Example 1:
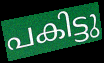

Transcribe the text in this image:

പകിട്ടു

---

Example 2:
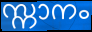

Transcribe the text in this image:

സ്നാനം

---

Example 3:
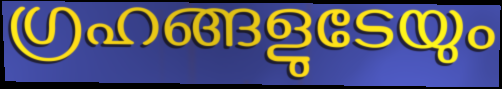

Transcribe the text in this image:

ഗ്രഹങ്ങളുടേയും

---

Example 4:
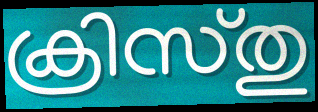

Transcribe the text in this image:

ക്രിസ്തു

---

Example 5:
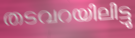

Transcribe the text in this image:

തടവറയിലിട്ടു